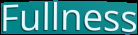
Fullness